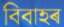
বিবাহৰ